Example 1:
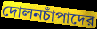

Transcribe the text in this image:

দোলনচাঁপাদের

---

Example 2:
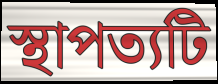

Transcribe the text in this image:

স্থাপত্যটি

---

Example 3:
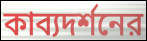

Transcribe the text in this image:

কাব্যদর্শনের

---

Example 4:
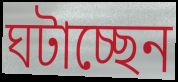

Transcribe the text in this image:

ঘটাচ্ছেন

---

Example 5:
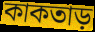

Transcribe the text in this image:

কাকতাড়